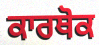
ਕਾਰਥੋਕ